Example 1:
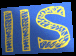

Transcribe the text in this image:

IIS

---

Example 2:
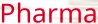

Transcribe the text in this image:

Pharma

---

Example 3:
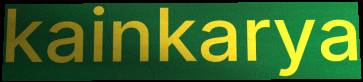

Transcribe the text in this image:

kainkarya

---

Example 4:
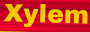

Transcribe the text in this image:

Xylem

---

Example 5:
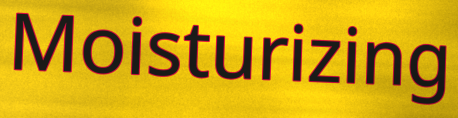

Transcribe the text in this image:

Moisturizing